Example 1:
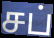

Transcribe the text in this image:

சப்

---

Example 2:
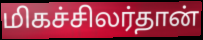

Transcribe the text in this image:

மிகச்சிலர்தான்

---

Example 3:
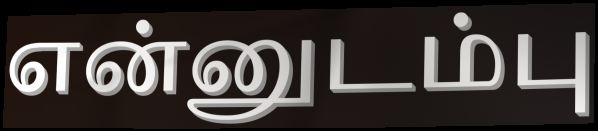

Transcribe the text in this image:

என்னுடம்பு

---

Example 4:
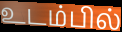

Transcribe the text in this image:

உடம்பில்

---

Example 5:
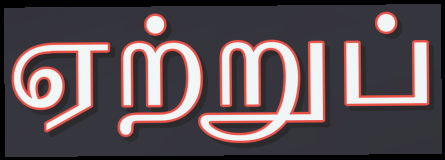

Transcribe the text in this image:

ஏற்றுப்